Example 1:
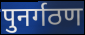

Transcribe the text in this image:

पुनर्गठण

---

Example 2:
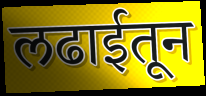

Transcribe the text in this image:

लढाईतून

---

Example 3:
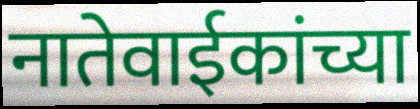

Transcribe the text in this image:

नातेवाईकांच्या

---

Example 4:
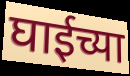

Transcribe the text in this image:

घाईच्या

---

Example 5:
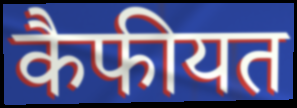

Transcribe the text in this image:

कैफीयत